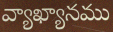
వ్యాఖ్యానము